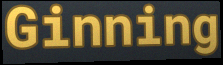
Ginning